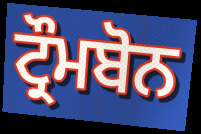
ਟ੍ਰੌਮਬੋਨ